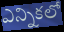
ఎన్నికలో